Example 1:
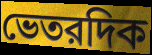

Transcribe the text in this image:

ভেতরদিক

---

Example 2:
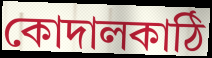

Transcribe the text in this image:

কোদালকাঠি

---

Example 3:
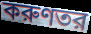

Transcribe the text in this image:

করুণতর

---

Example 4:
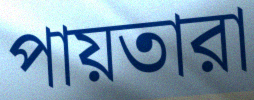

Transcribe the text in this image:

পায়তারা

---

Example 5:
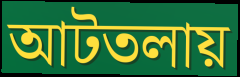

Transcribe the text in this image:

আটতলায়